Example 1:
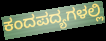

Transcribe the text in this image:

ಕಂದಪದ್ಯಗಳಲ್ಲಿ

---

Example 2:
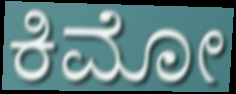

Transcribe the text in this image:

ಕಿಮೋ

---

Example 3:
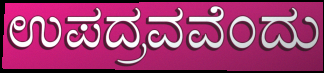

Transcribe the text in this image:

ಉಪದ್ರವವೆಂದು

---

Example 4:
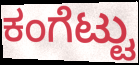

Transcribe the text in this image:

ಕಂಗೆಟ್ಟು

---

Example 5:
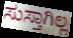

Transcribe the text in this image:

ಸುಸ್ತಾಗಿಲ್ಲ